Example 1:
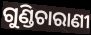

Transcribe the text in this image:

ଗୁଣ୍ଡିଚାରାଣୀ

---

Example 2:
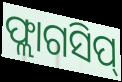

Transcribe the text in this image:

ଫ୍ଲାଗସିପ୍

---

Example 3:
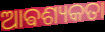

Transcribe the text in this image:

ଆଵଶ୍ୟକତା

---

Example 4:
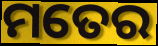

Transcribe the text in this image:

ମତେର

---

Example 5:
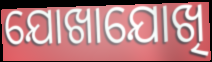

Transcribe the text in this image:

ଯୋଖାଯୋଖି